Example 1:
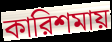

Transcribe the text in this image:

কারিশমায়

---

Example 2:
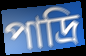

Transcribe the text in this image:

পাদ্রি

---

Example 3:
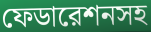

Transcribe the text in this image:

ফেডারেশনসহ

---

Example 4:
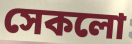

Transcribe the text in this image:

সেকলো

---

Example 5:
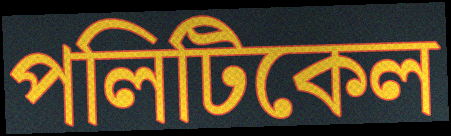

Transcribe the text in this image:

পলিটিকেল